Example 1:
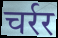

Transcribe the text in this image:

चर्रर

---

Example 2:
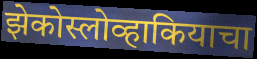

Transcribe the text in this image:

झेकोस्लोव्हाकियाचा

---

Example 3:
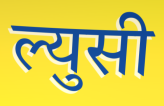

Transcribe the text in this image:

ल्युसी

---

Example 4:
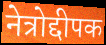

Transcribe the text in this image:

नेत्रोद्दीपक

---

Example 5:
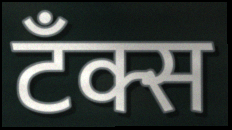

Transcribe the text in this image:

टँक्स